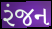
રંજન